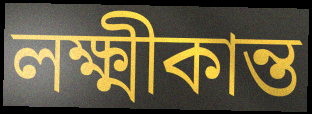
লক্ষ্মীকান্ত